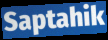
Saptahik